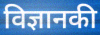
विज्ञानकी